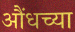
औंधच्या